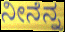
ನೀನೆನ್ನ